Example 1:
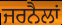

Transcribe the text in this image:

ਜਰਨੈਲਾਂ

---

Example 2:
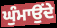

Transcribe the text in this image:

ਘੁੰਮਾਉਂਦੇ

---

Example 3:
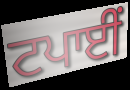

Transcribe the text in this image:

ਟਪਾਈਂ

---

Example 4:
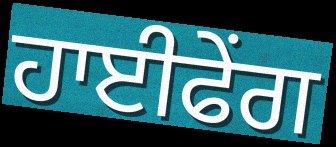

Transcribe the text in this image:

ਹਾਈਫੇਂਗ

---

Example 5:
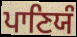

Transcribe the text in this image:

ਪਾਣਿਯੰ